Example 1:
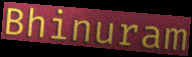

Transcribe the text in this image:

Bhinuram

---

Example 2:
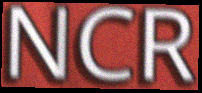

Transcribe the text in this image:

NCR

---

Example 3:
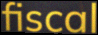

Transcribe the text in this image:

fiscal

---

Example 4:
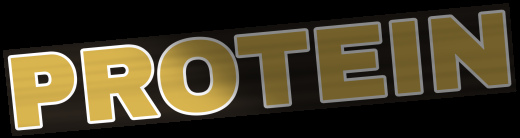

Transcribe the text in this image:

PROTEIN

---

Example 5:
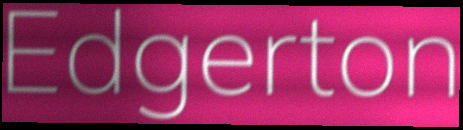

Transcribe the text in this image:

Edgerton